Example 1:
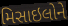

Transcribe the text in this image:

મિસાઇલોને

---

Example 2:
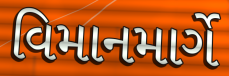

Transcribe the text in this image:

વિમાનમાર્ગે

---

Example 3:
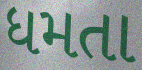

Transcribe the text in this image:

ધમતા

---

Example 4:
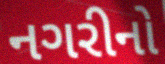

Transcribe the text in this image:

નગરીનો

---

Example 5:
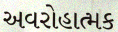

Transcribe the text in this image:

અવરોહાત્મક